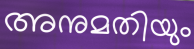
അനുമതിയും